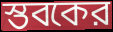
স্তবকের